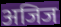
अजिज